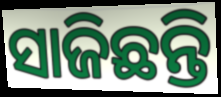
ସାଜିଛନ୍ତି